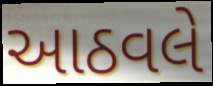
આઠવલે